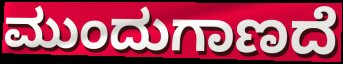
ಮುಂದುಗಾಣದೆ